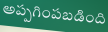
అప్పగింపబడింది